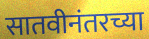
सातवीनंतरच्या